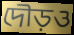
দৌড়ও